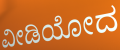
ವೀಡಿಯೋದ